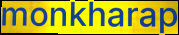
monkharap